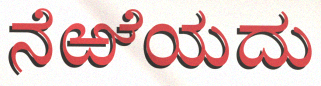
ನೆಱೆಯದು